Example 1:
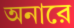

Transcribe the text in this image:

অনারে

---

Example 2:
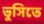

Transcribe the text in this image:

ভুসিতে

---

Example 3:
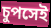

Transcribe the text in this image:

চুপসেই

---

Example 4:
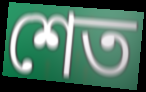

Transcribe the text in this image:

শেত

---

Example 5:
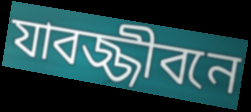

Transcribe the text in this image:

যাবজ্জীবনে